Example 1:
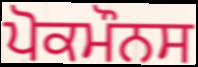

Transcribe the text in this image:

ਪੋਕਮੌਨਸ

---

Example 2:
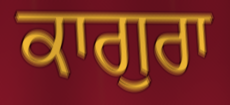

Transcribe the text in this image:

ਕਾਗੁਰਾ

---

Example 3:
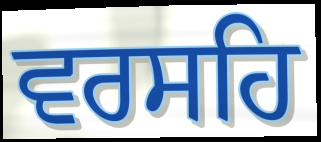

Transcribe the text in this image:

ਵਰਸਹਿ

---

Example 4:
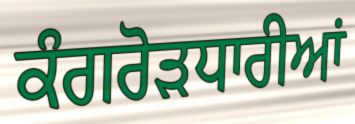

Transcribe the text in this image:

ਕੰਗਰੋੜਧਾਰੀਆਂ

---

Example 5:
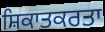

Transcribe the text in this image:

ਸ਼ਿਕਾਤਕਰਤਾ